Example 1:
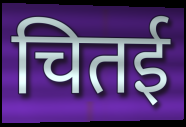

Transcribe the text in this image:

चितई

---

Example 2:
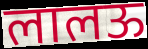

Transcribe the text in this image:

लालऊ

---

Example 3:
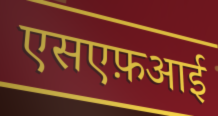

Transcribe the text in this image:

एसएफ़आई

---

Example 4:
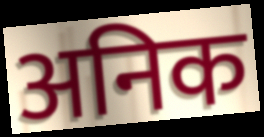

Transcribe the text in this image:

अनिक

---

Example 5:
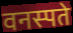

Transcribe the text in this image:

वनस्पते